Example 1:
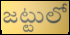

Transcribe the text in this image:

జట్టులో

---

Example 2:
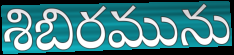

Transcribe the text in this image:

శిబిరమును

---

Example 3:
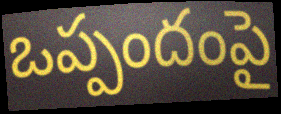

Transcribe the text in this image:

ఒప్పందంపై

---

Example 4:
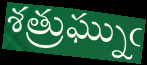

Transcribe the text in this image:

శత్రుఘ్నుఁ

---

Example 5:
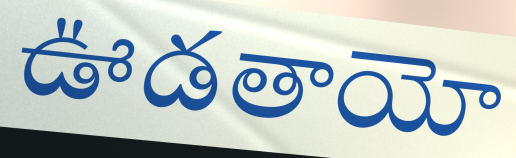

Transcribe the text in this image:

ఊడతాయో